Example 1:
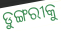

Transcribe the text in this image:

ଡୁଙ୍ଗରୀକୁ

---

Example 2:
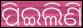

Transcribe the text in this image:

ପିଇଲିଣି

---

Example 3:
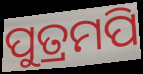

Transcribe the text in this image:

ପୁତ୍ରମପି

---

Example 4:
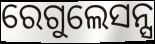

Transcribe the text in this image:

ରେଗୁଲେସନ୍ସ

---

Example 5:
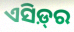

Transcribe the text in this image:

ଏସିଡ଼୍‌ର